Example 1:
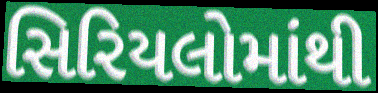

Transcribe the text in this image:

સિરિયલોમાંથી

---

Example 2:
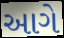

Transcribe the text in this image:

આગે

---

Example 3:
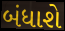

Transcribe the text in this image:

બંધાશે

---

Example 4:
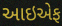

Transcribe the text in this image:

આઇએફ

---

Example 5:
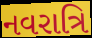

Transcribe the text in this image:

નવરાત્રિ